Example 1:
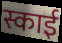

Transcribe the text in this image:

स्काई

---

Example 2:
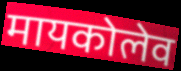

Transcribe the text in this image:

मायकोलेव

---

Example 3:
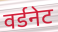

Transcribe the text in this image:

वर्डनेट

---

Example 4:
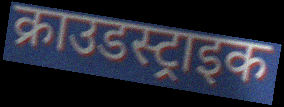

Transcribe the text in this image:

क्राउडस्ट्राइक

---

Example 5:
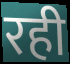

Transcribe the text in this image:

रही